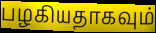
பழகியதாகவும்